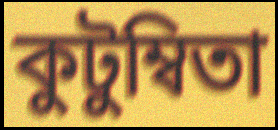
কুটুম্বিতা